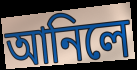
আনিলে